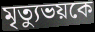
মৃত্যুভয়কে